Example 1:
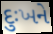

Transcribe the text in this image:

દુઃખને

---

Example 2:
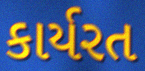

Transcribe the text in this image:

કાર્યરત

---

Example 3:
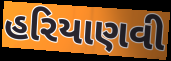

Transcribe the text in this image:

હરિયાણવી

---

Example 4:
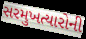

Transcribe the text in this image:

સરમુખત્યારોની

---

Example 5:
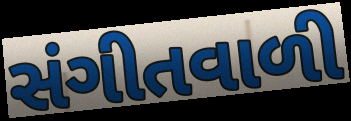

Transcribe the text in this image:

સંગીતવાળી